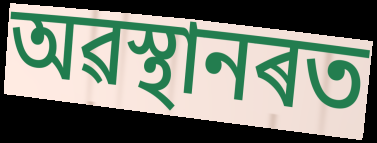
অৱস্থানৰত